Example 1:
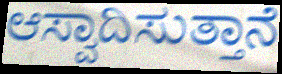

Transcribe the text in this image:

ಆಸ್ವಾದಿಸುತ್ತಾನೆ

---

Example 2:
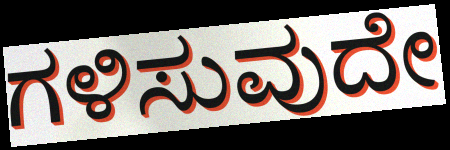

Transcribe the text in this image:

ಗಳಿಸುವುದೇ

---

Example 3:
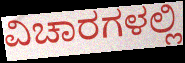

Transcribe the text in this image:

ವಿಚಾರಗಳಲ್ಲಿ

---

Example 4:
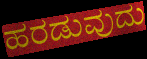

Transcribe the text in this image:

ಹರಡುವುದು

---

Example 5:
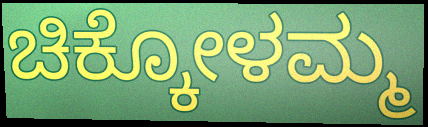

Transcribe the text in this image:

ಚಿಕ್ಕೋಳಮ್ಮ